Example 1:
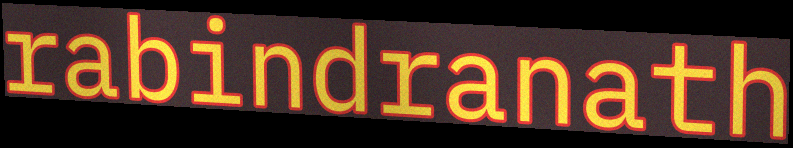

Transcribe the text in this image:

rabindranath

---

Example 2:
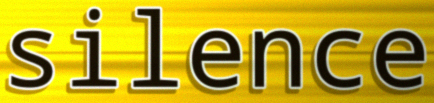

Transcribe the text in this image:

silence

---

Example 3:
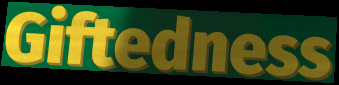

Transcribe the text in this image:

Giftedness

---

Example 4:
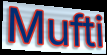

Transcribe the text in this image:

Mufti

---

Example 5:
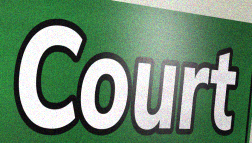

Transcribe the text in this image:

Court